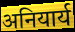
अनियार्य